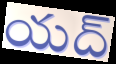
యద్